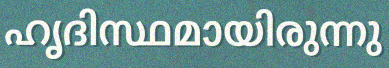
ഹൃദിസ്ഥമായിരുന്നു